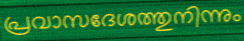
പ്രവാസദേശത്തുനിന്നും